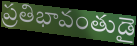
ప్రతిభావంతుడై